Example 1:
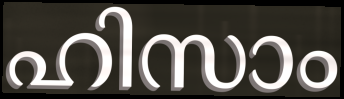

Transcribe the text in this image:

ഹിസാം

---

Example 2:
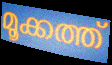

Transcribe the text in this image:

മൂക്കത്ത്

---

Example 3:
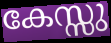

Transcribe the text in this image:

കേസ്സു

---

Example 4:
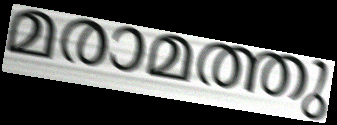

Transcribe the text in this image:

മരാമത്തു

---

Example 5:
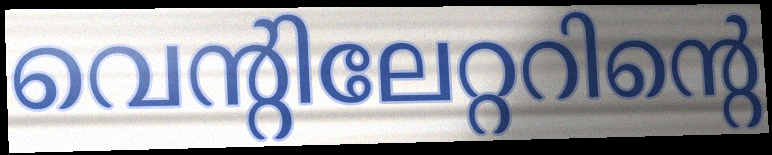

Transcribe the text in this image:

വെന്റിലേറ്ററിന്റെ